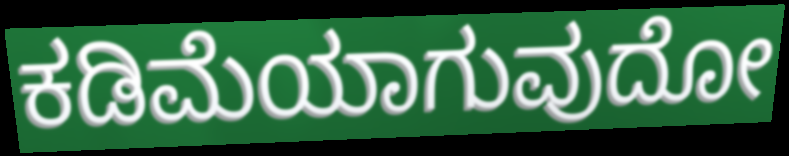
ಕಡಿಮೆಯಾಗುವುದೋ